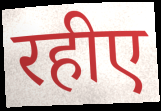
रहीए